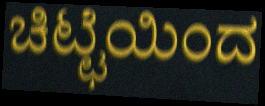
ಚಿಟ್ಟೆಯಿಂದ